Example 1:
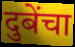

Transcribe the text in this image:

दुबेंचा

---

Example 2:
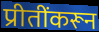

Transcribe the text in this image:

प्रीतींकरून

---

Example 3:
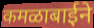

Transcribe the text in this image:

कमळाबाईने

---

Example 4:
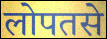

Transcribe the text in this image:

लोपतसे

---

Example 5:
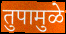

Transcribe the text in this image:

तुपामुळे